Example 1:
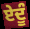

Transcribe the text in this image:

ਏਦੂੰ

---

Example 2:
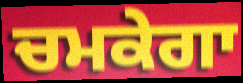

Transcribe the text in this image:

ਚਮਕੇਗਾ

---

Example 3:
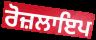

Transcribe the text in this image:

ਰੋਜ਼ਲਾਇਪ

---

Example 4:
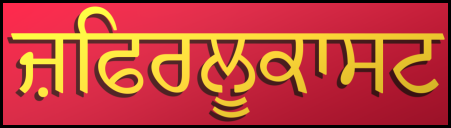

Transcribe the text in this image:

ਜ਼ਫਿਰਲੂਕਾਸਟ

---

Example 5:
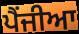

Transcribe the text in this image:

ਪੈਂਜੀਆ